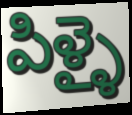
పిళ్ళై